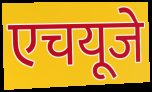
एचयूजे